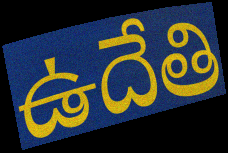
ఉదేతి